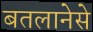
बतलानेसे